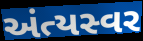
અંત્યસ્વર